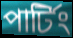
পার্টিং